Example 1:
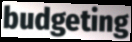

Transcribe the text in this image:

budgeting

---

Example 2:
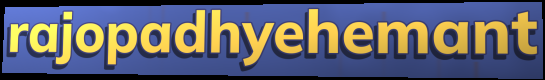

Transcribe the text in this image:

rajopadhyehemant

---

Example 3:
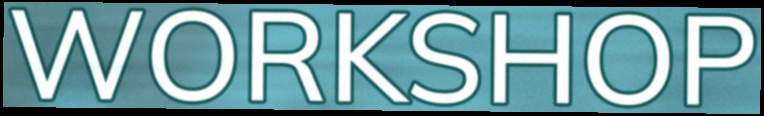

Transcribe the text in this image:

WORKSHOP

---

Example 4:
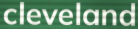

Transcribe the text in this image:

cleveland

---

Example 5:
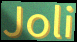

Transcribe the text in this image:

Joli